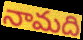
నామది